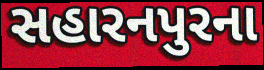
સહારનપુરના